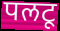
पलटू